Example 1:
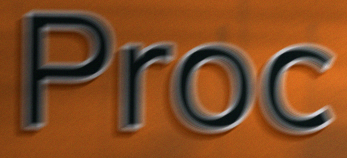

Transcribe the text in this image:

Proc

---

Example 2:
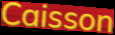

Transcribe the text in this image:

Caisson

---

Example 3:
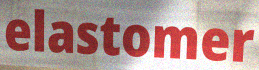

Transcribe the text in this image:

elastomer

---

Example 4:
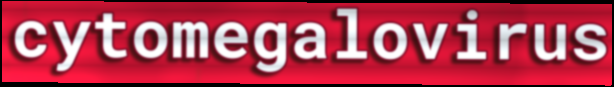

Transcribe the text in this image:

cytomegalovirus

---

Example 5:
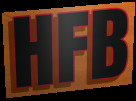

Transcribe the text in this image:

HFB